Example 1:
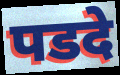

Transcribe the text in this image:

पडदे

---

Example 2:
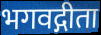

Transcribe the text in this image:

भगवद्गीता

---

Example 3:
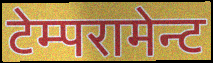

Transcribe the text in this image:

टेम्परामेन्ट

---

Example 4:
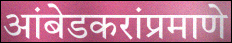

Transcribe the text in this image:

आंबेडकरांप्रमाणे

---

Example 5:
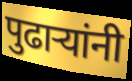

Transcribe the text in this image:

पुढाऱ्यांनी